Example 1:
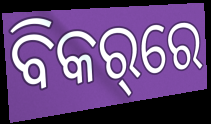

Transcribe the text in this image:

ବିକର୍‌ରେ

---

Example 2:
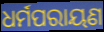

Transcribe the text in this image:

ଧର୍ମପରାୟଣ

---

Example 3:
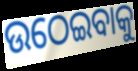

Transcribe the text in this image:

ଉଠେଇବାକୁ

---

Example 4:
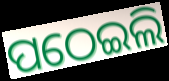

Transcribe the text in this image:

ପଠେଇଲି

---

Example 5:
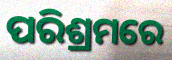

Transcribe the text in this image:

ପରିଶ୍ରମରେ